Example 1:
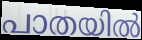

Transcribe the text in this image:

പാതയിൽ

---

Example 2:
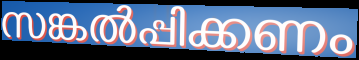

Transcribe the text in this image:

സങ്കൽപ്പിക്കണം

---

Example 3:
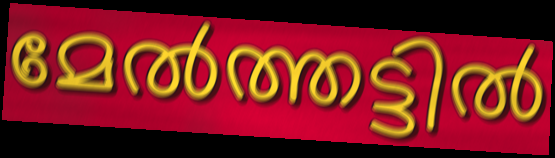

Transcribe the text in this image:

മേൽത്തട്ടിൽ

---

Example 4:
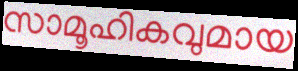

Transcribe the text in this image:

സാമൂഹികവുമായ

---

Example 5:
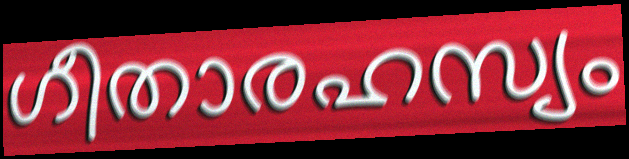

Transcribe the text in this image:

ഗീതാരഹസ്യം